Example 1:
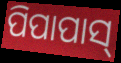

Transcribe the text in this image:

ପିପାପାସ୍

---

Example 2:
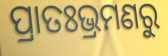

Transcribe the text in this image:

ପ୍ରାତଃଭ୍ରମଣରୁ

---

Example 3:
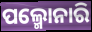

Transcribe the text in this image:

ପଲ୍ମୋନାରି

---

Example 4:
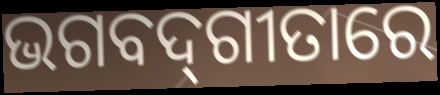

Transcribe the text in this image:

ଭଗବଦ୍‌ଗୀତାରେ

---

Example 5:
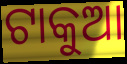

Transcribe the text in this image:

ଟାକୁଆ